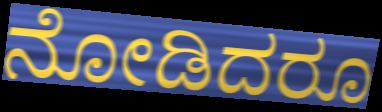
ನೋಡಿದರೂ